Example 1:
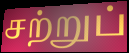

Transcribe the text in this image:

சற்றுப்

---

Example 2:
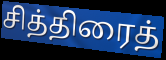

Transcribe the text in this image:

சித்திரைத்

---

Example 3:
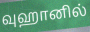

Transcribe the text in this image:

வுஹானில்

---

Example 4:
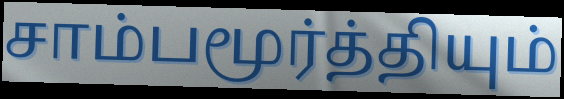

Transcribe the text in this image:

சாம்பமூர்த்தியும்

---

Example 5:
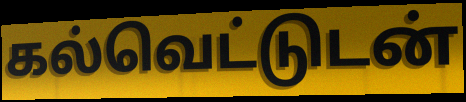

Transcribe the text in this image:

கல்வெட்டுடன்